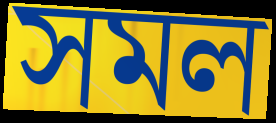
সমল